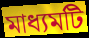
মাধ্যমটি